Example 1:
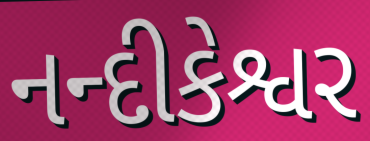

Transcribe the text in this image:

નન્દીકેશ્વર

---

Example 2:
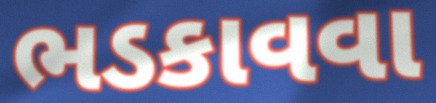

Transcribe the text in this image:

ભડકાવવા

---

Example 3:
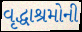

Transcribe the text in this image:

વૃદ્ધાશ્રમોની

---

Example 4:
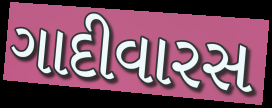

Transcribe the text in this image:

ગાદીવારસ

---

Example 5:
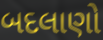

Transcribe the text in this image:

બદલાણો